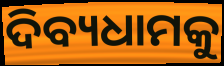
ଦିବ୍ୟଧାମକୁ